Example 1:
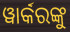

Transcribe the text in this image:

ୱାର୍କରଙ୍କୁ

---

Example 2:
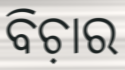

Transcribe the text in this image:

ବିଚ଼ାର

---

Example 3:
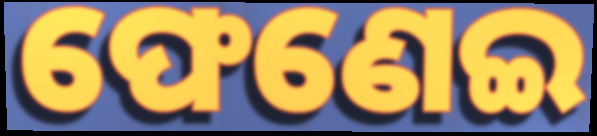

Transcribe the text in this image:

ଫେଣେଇ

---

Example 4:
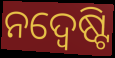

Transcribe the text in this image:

ନଦ୍ୱେଷ୍ଟି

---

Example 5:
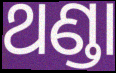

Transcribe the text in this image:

ଥଣ୍ଡା